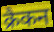
क्रैकन